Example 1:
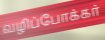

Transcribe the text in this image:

வழிப்போக்கர்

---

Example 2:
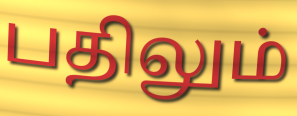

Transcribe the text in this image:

பதிலும்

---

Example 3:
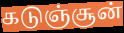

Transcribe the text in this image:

கடுஞ்சூன்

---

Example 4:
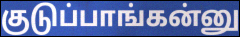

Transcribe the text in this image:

குடுப்பாங்கன்னு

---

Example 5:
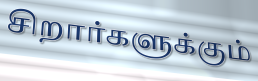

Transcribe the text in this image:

சிறார்களுக்கும்